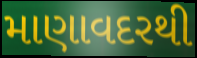
માણાવદરથી